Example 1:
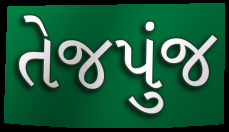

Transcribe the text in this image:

તેજપુંજ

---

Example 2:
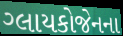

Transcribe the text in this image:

ગ્લાયકોજેનના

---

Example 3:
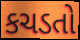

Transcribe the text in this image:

કચડતો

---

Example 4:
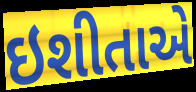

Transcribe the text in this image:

ઇશીતાએ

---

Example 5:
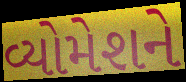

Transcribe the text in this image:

વ્યોમેશને